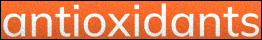
antioxidants